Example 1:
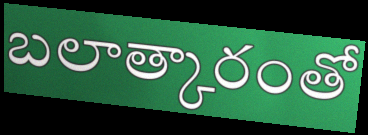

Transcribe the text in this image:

బలాత్కారంతో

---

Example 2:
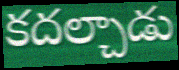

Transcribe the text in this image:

కదల్చాడు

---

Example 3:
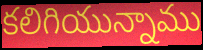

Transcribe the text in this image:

కలిగియున్నాము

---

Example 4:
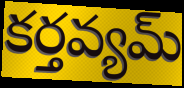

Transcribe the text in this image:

కర్తవ్యమ్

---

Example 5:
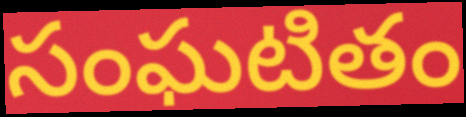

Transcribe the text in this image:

సంఘటితం